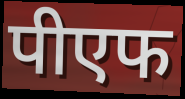
पीएफ